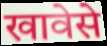
खावेसे